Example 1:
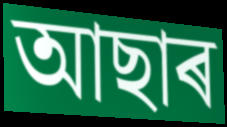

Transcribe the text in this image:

আছাৰ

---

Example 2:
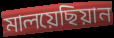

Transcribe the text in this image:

মালয়েছিয়ান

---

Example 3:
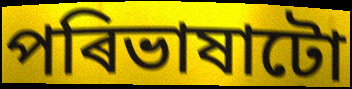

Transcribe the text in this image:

পৰিভাষাটো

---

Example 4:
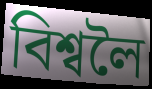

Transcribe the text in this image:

বিশ্বলৈ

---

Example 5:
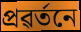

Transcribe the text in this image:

প্ৰৱৰ্তনে